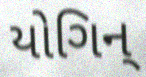
યોગિન્